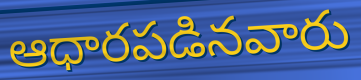
ఆధారపడినవారు